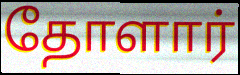
தோளார்